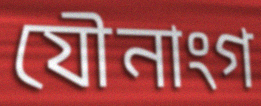
যৌনাংগ